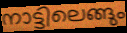
നാട്ടിലെങ്ങും